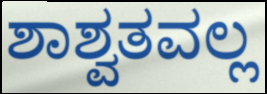
ಶಾಶ್ವತವಲ್ಲ